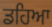
ਡਹਿਆ